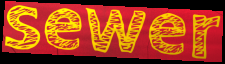
sewer